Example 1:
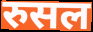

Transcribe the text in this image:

रुसल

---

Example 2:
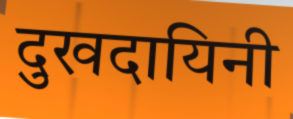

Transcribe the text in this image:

दुखदायिनी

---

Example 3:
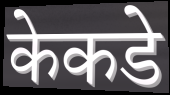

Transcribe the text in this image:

केकडे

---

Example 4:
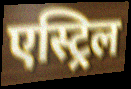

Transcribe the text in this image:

एस्ट्रिल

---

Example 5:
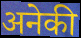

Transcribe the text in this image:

अनेकी